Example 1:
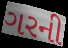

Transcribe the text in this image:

ગરની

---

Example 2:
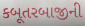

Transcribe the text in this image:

કબૂતરબાજીની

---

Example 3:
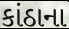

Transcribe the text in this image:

કાંઠાના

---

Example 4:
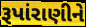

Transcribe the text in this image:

રૂપાંરાણીને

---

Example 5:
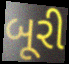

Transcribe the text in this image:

બૂરી